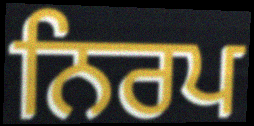
ਨਿਰਪ